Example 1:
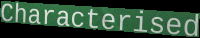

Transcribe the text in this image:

Characterised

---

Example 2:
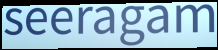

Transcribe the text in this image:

seeragam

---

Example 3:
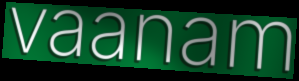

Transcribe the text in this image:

vaanam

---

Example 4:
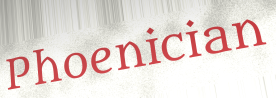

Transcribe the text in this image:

Phoenician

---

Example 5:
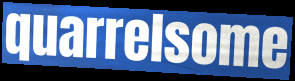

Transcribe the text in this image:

quarrelsome